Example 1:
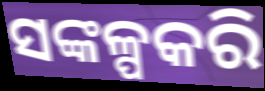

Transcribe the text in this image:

ସଙ୍କଳ୍ପକରି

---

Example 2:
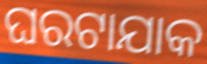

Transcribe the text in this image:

ଘରଟାଯାକ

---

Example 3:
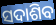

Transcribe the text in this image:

ସଦାଶିବ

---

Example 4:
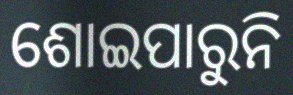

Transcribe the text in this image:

ଶୋଇପାରୁନି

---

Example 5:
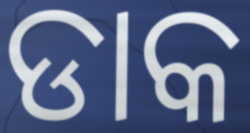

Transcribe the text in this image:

ଡାକ